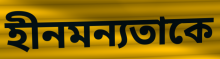
হীনমন্যতাকে